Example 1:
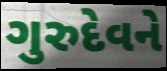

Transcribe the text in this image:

ગુરુદેવને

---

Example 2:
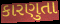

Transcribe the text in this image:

કારણુતા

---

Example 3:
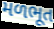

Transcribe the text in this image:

મળભૂત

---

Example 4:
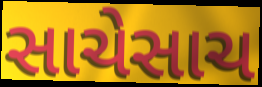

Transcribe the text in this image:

સાચેસાચ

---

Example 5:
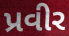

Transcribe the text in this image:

પ્રવીર